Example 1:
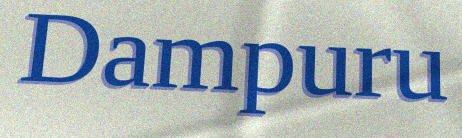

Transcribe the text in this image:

Dampuru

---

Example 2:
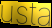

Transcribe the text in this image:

usta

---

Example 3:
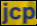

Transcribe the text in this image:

jcp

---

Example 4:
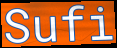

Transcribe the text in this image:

Sufi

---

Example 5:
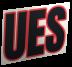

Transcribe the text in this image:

UES